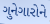
ગુનેગારોને